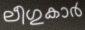
ലീഗുകാർ